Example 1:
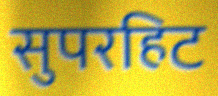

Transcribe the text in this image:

सुपरहिट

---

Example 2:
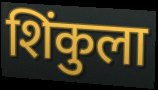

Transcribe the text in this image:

शिंकुला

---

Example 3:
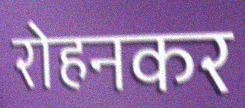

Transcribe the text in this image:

रोहनकर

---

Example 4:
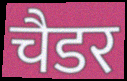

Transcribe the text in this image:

चैडर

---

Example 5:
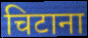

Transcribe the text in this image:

चिटाना